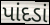
પાંદડાં